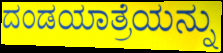
ದಂಡಯಾತ್ರೆಯನ್ನು